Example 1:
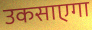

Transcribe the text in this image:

उकसाएगा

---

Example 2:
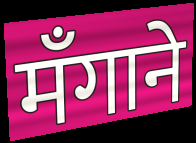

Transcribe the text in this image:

मँगाने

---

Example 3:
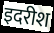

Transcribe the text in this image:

इदरीश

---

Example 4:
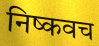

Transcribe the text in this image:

निष्कवच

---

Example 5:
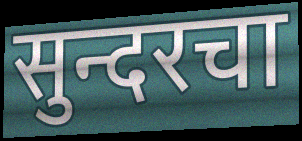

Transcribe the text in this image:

सुन्दरचा